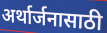
अर्थार्जनासाठी